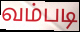
வம்படி